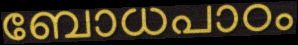
ബോധപാഠം